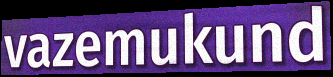
vazemukund